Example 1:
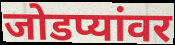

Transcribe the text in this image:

जोडप्यांवर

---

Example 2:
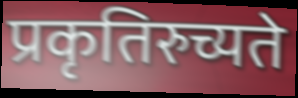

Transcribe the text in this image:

प्रकृतिरुच्यते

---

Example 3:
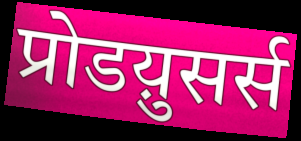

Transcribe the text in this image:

प्रोडय़ुसर्स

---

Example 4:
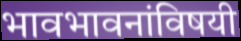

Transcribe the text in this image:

भावभावनांविषयी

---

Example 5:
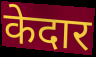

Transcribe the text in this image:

केदार